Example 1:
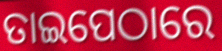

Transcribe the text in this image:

ତାଇପେଠାରେ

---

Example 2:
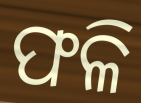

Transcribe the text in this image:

ଫଳି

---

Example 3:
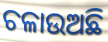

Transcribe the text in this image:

ଚଳାଉଅଛି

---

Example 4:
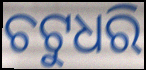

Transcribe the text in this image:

ଚଟୁଧରି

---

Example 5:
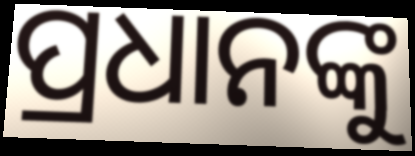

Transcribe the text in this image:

ପ୍ରଧାନଙ୍କୁ